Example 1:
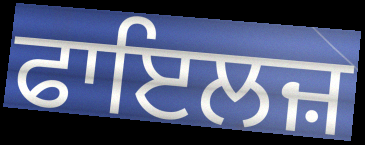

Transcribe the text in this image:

ਫਾਇਲਜ਼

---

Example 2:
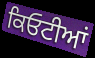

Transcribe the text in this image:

ਕਿਓਟੀਆਂ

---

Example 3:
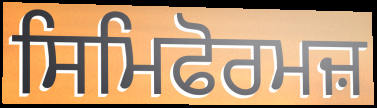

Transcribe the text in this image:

ਸਿਮਿਫੋਰਮਜ਼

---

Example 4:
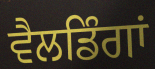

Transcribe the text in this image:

ਵੈਲਡਿੰਗਾਂ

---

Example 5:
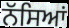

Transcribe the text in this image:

ਨੱਸਿਆਂ